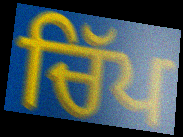
ਚਿੱਪ